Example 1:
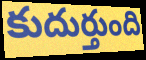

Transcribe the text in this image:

కుదుర్తుంది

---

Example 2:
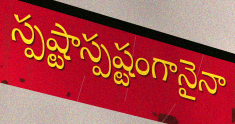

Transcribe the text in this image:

స్పష్టాస్పష్టంగానైనా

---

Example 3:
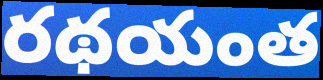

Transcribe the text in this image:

రథయంత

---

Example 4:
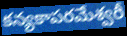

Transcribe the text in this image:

కన్యకాపరమేశ్వరీ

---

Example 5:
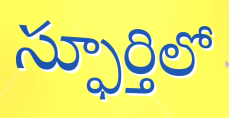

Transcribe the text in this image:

స్ఫూర్తిలో